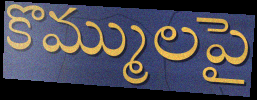
కొమ్ములపై